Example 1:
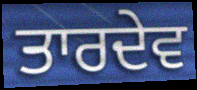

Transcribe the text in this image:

ਤਾਰਦੇਵ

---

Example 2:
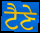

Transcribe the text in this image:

ਟੈਣੇ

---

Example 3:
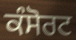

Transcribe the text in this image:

ਕੰਸੋਰਟ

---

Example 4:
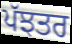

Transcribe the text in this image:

ਪੱਝਤਰ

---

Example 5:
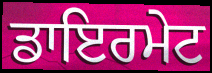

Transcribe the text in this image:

ਡਾਇਰਮੇਟ